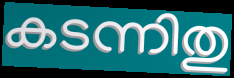
കടന്നിതു